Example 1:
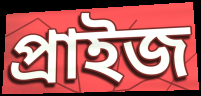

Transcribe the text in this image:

প্ৰাইজ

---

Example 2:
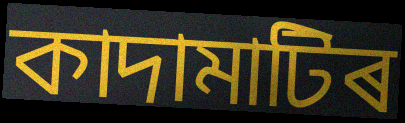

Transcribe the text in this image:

কাদামাটিৰ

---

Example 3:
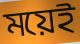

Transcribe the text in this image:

ময়েই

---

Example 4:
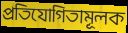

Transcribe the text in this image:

প্ৰতিযোগিতামূলক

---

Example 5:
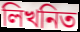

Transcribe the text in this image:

লিখনিত